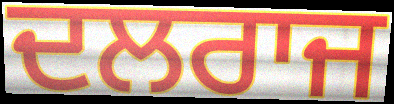
ਦਲਰਾਜ